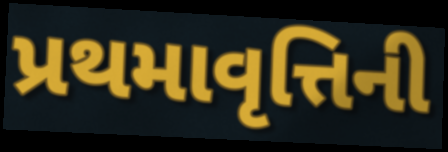
પ્રથમાવૃત્તિની